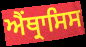
ਐਂਥ੍ਰਾਸਿਸ